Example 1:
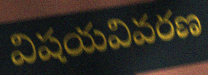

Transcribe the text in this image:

విషయవివరణ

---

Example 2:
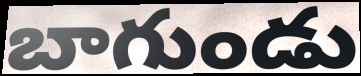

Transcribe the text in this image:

బాగుండు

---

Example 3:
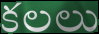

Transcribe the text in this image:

కలలు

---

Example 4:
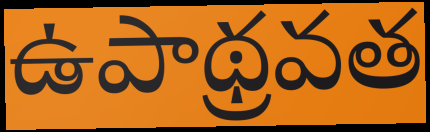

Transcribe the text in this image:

ఉపాథ్రవత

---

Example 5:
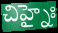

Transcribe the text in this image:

చిహ్నైః